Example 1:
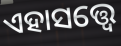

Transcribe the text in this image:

ଏହାସତ୍ତ୍ବେ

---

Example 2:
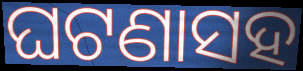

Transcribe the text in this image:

ଘଟଣାସହ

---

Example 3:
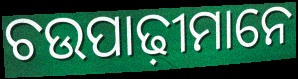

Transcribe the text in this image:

ଚଉପାଢ଼ୀମାନେ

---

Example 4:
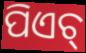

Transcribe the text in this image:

ପିଏଚ୍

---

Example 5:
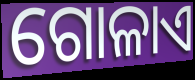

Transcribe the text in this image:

ଗୋଳାଏ